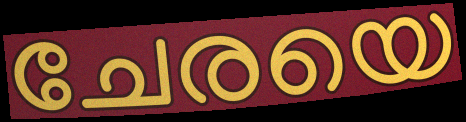
ചേരയെ